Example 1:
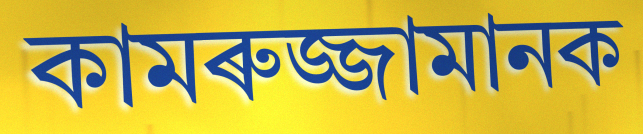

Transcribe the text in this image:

কামৰুজ্জামানক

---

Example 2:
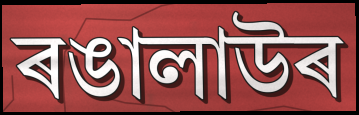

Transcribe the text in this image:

ৰঙালাউৰ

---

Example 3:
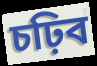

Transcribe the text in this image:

চঢ়িব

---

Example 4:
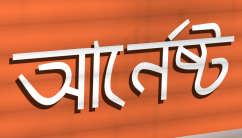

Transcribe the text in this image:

আৰ্নেষ্ট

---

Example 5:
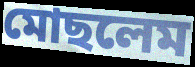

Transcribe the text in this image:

মোছলেম